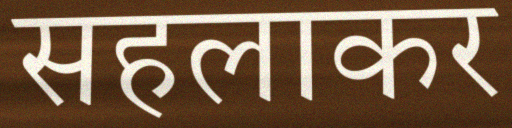
सहलाकर